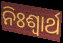
ନିଃଶ୍ୱାର୍ଥ